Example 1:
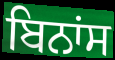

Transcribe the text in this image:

ਬਿਨਾਂਸ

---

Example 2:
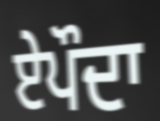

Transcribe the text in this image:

ਏਪੌਦਾ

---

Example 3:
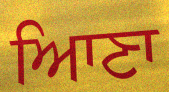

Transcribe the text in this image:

ਆਿਣਾ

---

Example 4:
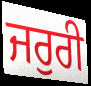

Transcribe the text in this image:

ਜਰੁਰੀ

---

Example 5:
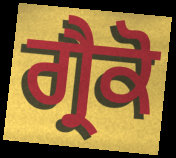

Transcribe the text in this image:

ਗ੍ਰੈਕੋ